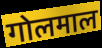
गोलमाल